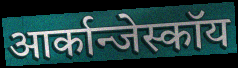
आर्कान्जेस्कॉय